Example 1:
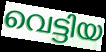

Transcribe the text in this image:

വെട്ടിയ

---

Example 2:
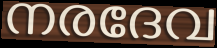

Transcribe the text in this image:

നരദേവ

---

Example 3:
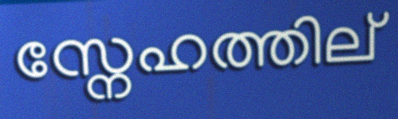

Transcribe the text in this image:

സ്നേഹത്തില്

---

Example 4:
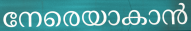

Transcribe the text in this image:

നേരെയാകാൻ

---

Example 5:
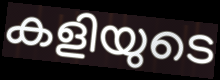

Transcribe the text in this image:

കളിയുടെ